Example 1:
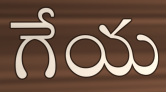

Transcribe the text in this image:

గేయ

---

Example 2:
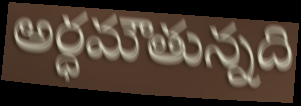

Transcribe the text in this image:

అర్ధమౌతున్నది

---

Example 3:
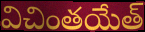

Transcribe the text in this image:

విచింతయేత్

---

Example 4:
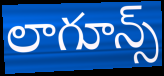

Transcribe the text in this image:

లాగూన్స్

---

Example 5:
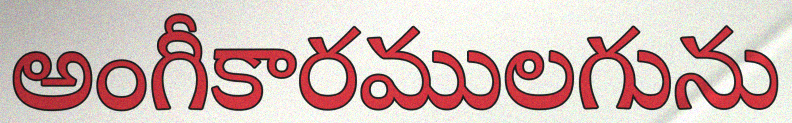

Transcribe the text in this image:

అంగీకారములగును